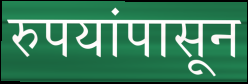
रुपयांपासून